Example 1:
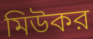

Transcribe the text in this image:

মিউকর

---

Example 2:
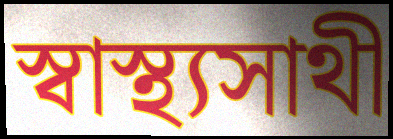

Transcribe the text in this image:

স্বাস্থ্যসাথী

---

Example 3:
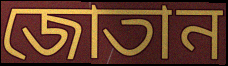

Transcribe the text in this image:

জোতান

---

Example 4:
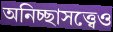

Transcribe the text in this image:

অনিচ্ছাসত্ত্বেও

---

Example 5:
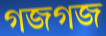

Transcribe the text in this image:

গজগজ